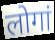
लोगां